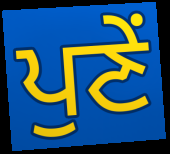
ਪੁਣੇਂ